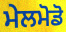
ਮੇਲਮੋਡੋ